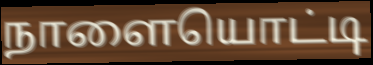
நாளையொட்டி